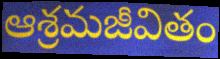
ఆశ్రమజీవితం